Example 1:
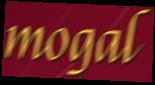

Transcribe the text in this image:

mogal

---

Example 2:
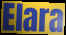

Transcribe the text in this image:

Elara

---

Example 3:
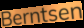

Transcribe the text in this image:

Berntsen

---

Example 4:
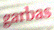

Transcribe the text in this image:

garbas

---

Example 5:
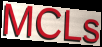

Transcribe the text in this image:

MCLs